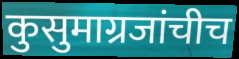
कुसुमाग्रजांचीच